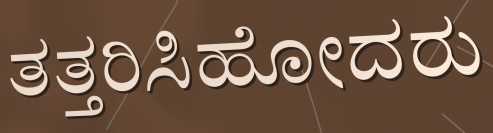
ತತ್ತರಿಸಿಹೋದರು